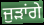
ਜੁੜਾਂਗੇ